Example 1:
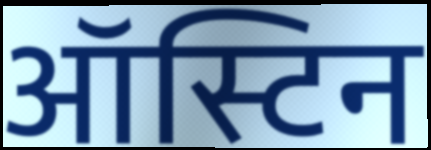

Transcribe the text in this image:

ऑस्टिन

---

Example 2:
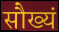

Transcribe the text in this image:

सौख्यं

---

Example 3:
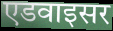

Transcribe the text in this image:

एडवाइसर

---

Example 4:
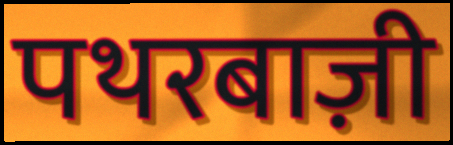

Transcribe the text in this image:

पथरबाज़ी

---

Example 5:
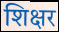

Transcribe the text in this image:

शिक्षर